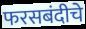
फरसबंदीचे